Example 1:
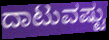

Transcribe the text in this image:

ದಾಟುವಷ್ಟು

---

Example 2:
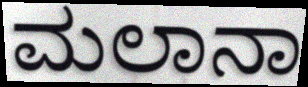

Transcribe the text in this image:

ಮಲಾನಾ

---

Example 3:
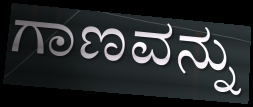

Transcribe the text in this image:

ಗಾಣವನ್ನು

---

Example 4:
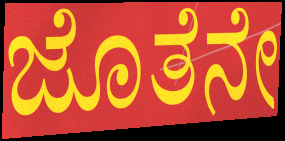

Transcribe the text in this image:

ಜೊತೆನೇ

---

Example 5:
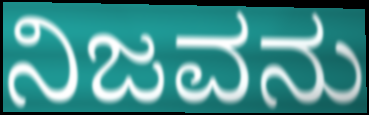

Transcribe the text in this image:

ನಿಜವನು